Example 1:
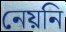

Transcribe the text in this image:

নেয়নি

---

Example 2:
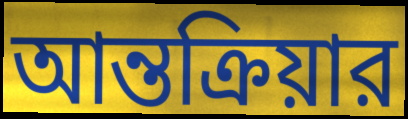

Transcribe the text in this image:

আন্তক্রিয়ার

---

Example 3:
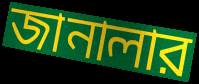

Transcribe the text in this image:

জানালার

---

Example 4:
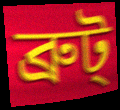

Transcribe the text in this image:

ব্রুট্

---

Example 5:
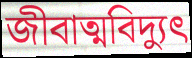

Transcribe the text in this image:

জীবাত্মবিদ্যুৎ